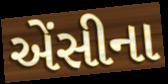
એંસીના